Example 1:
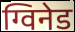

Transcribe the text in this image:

ग्विनेड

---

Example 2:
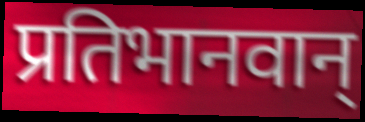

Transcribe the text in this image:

प्रतिभानवान्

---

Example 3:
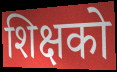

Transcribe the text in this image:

शिक्षको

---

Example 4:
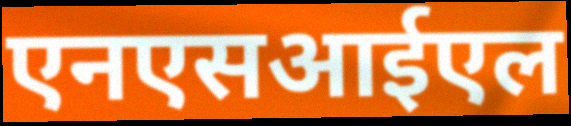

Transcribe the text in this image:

एनएसआईएल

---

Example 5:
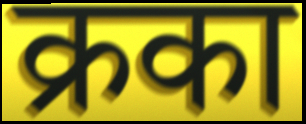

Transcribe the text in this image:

क्रका